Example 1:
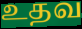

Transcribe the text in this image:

உதவ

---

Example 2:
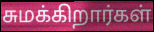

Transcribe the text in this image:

சுமக்கிறார்கள்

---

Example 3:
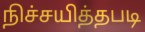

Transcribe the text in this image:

நிச்சயித்தபடி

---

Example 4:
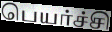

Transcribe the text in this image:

பெயர்ச்சி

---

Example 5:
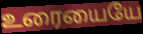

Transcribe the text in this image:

உரையையே